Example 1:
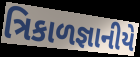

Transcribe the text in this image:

ત્રિકાળજ્ઞાનીયે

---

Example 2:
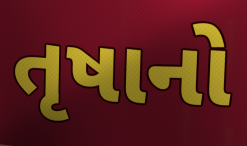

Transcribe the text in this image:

તૃષાનો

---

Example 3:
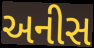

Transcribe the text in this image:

અનીસ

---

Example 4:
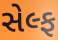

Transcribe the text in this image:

સેલ્ફ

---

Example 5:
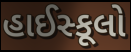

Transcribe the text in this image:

હાઈસ્કૂલો